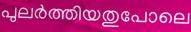
പുലർത്തിയതുപോലെ